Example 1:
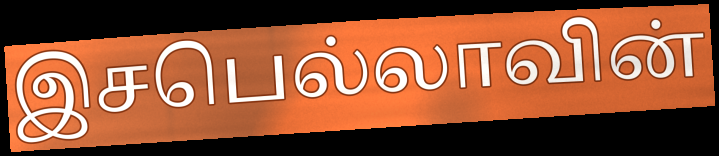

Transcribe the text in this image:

இசபெல்லாவின்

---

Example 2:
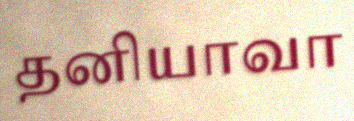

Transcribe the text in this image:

தனியாவா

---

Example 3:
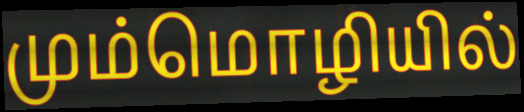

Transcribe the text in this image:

மும்மொழியில்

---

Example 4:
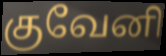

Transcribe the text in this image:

குவேனி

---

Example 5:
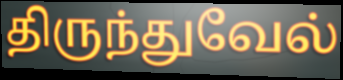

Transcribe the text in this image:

திருந்துவேல்